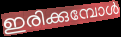
ഇരിക്കുമ്പോൾ